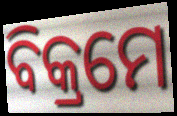
ବିକ୍ରମେ